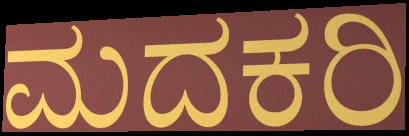
ಮದಕರಿ